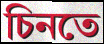
চিনতে